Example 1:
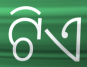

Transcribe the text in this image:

ଟିଏ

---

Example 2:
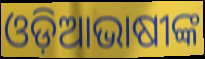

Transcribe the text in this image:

ଓଡ଼ିଆଭାଷୀଙ୍କ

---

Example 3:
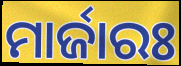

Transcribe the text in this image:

ମାର୍ଜାରଃ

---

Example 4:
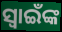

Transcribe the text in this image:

ସ୍ଵାଇଁଙ୍କ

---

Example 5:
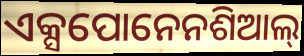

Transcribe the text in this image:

ଏକ୍ସପୋନେନଶିଆଲ୍